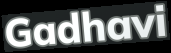
Gadhavi